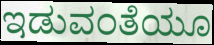
ಇಡುವಂತೆಯೂ